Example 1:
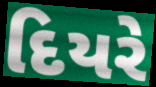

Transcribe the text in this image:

દિયરે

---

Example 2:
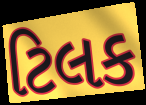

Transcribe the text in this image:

ટિલક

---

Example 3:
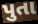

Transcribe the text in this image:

પુતા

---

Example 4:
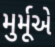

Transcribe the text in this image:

મુર્મૂએ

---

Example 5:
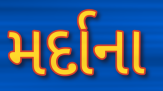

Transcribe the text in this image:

મર્દાના